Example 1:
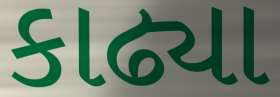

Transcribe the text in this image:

કાઢ્યા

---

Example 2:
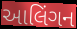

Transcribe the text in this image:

આલિંગન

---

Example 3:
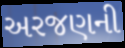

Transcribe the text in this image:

અરજણની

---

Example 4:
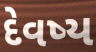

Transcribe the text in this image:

દેવષ્ય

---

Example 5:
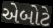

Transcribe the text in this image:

એબોટે